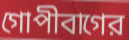
গোপীবাগের